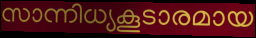
സാന്നിധ്യകൂടാരമായ